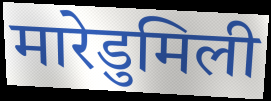
मारेडुमिली